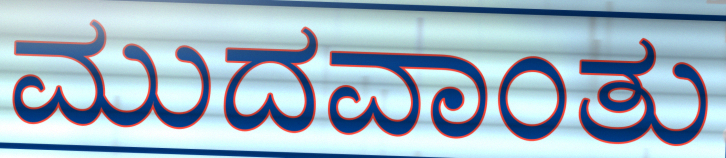
ಮುದವಾಂತು